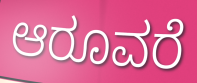
ಆರೂವರೆ